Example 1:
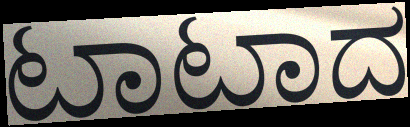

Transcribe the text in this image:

ಟಾಟಾದ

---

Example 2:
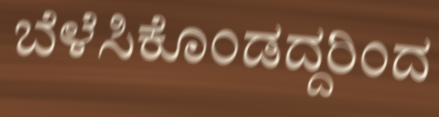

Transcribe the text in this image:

ಬೆಳೆಸಿಕೊಂಡದ್ದರಿಂದ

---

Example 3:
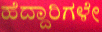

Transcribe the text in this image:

ಹೆದ್ದಾರಿಗಳೇ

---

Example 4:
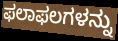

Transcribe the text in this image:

ಫಲಾಫಲಗಳನ್ನು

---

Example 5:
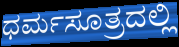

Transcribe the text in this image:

ಧರ್ಮಸೂತ್ರದಲ್ಲಿ